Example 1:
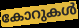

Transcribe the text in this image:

കോറുകൾ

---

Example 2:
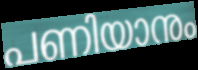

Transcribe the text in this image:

പണിയാനും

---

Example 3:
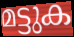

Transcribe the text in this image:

മട്ടുക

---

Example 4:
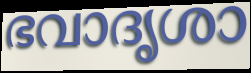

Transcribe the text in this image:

ഭവാദൃശാ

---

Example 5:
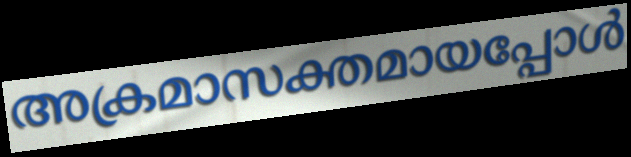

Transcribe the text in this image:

അക്രമാസക്തമായപ്പോൾ